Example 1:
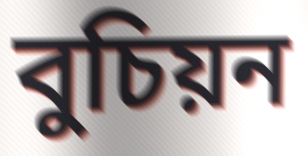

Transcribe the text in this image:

বুচিয়ন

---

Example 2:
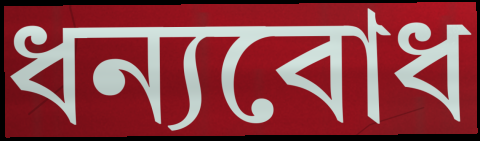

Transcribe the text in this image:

ধন্যবোধ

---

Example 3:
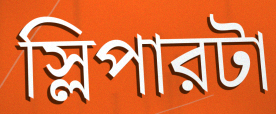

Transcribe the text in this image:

স্লিপারটা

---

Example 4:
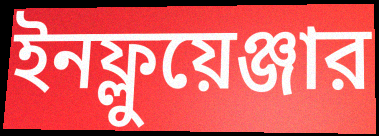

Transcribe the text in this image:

ইনফ্লুয়েঞ্জার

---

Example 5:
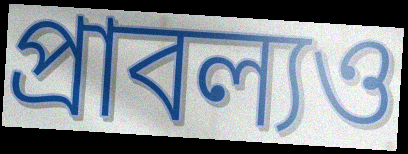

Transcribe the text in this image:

প্রাবল্যও